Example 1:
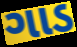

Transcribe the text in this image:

ગાડ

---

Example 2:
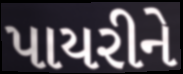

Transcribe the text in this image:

પાયરીને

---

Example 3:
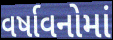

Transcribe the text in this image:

વર્ષાવનોમાં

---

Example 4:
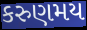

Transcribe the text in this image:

કરુણમય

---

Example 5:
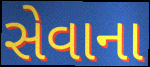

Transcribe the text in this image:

સેવાના